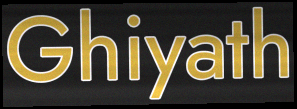
Ghiyath